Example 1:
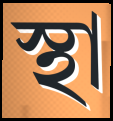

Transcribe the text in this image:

স্থা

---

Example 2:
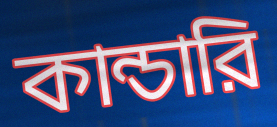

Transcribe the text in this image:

কান্ডারি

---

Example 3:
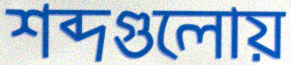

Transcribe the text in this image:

শব্দগুলোয়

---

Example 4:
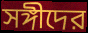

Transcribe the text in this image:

সঙ্গীদের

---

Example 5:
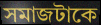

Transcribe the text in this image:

সমাজটাকে